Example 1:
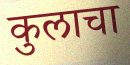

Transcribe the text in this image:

कुलाचा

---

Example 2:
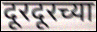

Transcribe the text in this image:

दूरदूरच्या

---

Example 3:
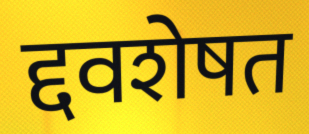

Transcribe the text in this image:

द्दवशेषत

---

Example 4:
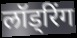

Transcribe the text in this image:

लॉड्रिंग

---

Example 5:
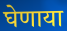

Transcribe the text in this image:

घेणाया